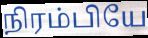
நிரம்பியே